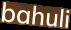
bahuli